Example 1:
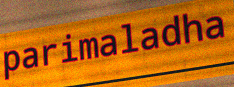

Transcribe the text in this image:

parimaladha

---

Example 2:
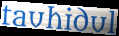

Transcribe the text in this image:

tauhidul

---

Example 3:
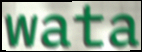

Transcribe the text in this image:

wata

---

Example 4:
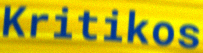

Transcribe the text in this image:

Kritikos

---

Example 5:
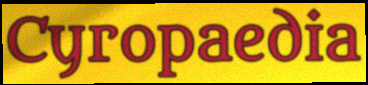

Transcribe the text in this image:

Cyropaedia